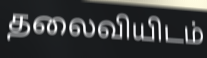
தலைவியிடம்